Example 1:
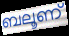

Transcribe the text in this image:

ബലൂണ്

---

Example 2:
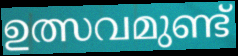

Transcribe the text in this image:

ഉത്സവമുണ്ട്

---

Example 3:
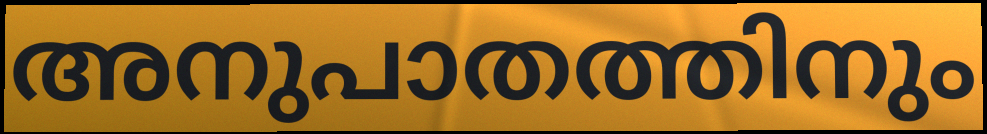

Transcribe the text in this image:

അനുപാതത്തിനും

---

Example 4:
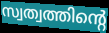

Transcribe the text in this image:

സ്വത്വത്തിന്റെ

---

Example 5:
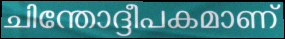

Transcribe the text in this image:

ചിന്തോദ്ദീപകമാണ്